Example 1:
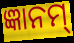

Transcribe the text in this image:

ଜ୍ଞାନମ୍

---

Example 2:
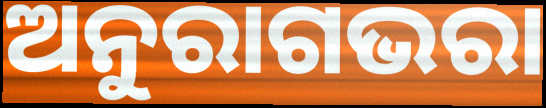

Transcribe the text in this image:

ଅନୁରାଗଭରା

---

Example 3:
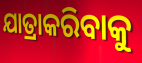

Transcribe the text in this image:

ଯାତ୍ରାକରିବାକୁ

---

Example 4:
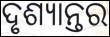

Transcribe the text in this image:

ଦୃଶ୍ୟାନ୍ତର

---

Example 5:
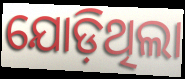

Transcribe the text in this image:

ଯୋଡ଼ିଥିଲା